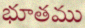
భూతము